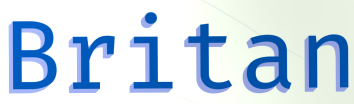
Britan